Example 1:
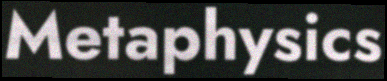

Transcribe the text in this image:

Metaphysics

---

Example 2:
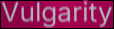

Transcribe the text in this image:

Vulgarity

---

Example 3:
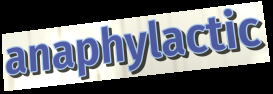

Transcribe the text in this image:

anaphylactic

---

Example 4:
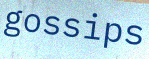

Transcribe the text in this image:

gossips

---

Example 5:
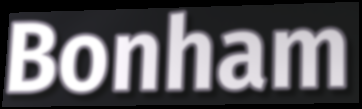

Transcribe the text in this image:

Bonham